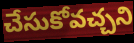
చేసుకోవచ్చని